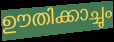
ഊതിക്കാച്ചും